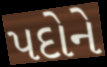
પદોને